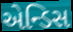
એન્ડિસ